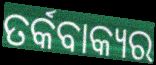
ତର୍କବାକ୍ୟର